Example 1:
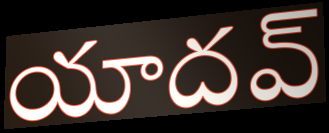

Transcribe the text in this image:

యాదవ్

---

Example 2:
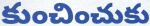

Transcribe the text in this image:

కుంచించుకు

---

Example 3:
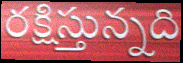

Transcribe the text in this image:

రక్షిస్తున్నది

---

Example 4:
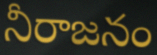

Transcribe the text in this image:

నీరాజనం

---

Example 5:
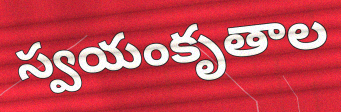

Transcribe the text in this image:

స్వయంకృతాల